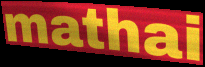
mathai